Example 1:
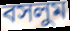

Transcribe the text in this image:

বসলুম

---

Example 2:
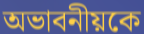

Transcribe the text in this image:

অভাবনীয়কে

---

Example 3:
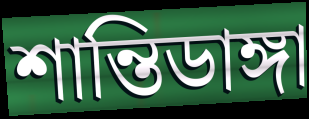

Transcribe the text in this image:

শান্তিডাঙ্গা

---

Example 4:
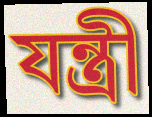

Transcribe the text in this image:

যন্ত্রী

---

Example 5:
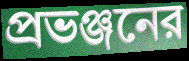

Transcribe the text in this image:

প্রভঞ্জনের